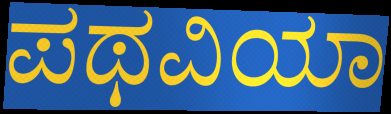
ಪಥವಿಯಾ